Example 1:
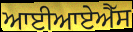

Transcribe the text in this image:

ਆਈਆਏਐੱਸ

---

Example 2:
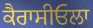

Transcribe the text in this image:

ਕੈਰਾਸੀਓਲਾ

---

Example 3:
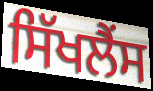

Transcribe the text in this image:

ਸਿੱਖਲੈਂਸ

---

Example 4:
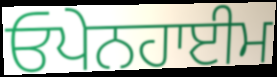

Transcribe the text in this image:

ਓਪੇਨਹਾਈਮ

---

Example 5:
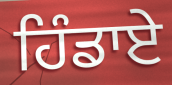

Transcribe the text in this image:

ਹਿੰਡਾਏ